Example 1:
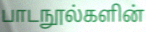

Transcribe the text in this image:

பாடநூல்களின்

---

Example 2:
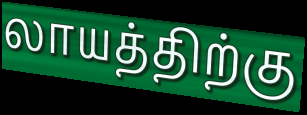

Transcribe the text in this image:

லாயத்திற்கு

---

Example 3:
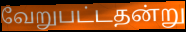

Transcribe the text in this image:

வேறுபட்டதன்று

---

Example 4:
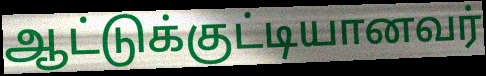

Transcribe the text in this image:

ஆட்டுக்குட்டியானவர்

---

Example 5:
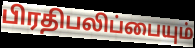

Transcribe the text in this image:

பிரதிபலிப்பையும்